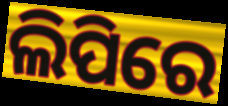
ଲିପିରେ